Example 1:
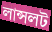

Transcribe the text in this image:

লান্সলট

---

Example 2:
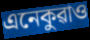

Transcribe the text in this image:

এনেকুৱাও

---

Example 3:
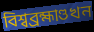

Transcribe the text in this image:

বিশ্বব্ৰহ্মাণ্ডখন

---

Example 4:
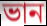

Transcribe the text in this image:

ভান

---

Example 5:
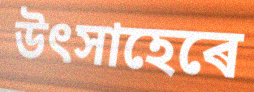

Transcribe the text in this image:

উৎসাহেৰে